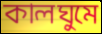
কালঘুমে